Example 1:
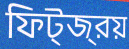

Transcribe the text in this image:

ফিট্‌জ্‌রয়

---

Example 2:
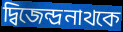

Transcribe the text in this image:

দ্বিজেন্দ্রনাথকে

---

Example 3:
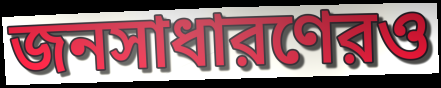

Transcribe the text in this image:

জনসাধারণেরও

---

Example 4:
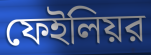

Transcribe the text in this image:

ফেইলিয়র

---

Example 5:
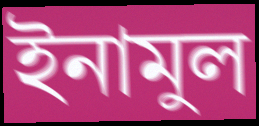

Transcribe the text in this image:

ইনামুল